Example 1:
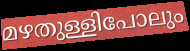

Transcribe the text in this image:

മഴതുള്ളിപോലും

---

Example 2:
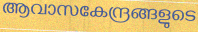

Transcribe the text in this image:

ആവാസകേന്ദ്രങ്ങളുടെ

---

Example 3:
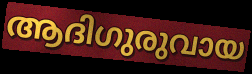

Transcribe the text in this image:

ആദിഗുരുവായ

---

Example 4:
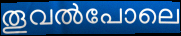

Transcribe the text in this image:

തൂവൽപോലെ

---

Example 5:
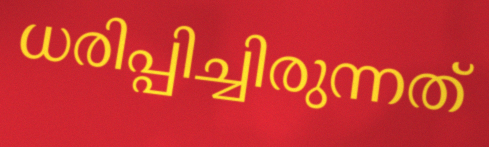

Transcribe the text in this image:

ധരിപ്പിച്ചിരുന്നത്